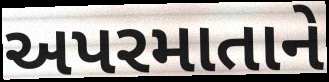
અપરમાતાને